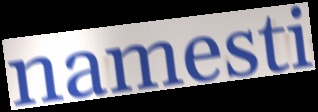
namesti